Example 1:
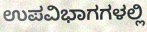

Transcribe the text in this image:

ಉಪವಿಭಾಗಗಳಲ್ಲಿ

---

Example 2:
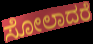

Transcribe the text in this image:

ಸೋಲಾದರೆ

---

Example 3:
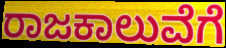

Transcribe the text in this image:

ರಾಜಕಾಲುವೆಗೆ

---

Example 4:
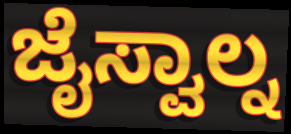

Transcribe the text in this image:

ಜೈಸ್ವಾಲ್ನ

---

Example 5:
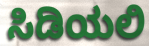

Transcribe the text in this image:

ಸಿಡಿಯಲಿ